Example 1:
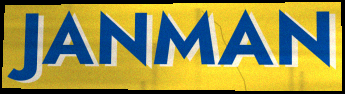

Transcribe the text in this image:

JANMAN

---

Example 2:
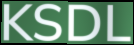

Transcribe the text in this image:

KSDL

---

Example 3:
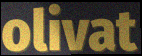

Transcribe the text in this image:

olivat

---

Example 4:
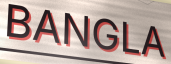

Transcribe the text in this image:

BANGLA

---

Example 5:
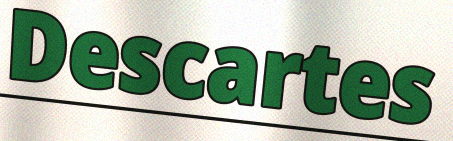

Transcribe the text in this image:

Descartes